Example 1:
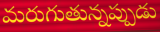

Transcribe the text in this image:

మరుగుతున్నప్పుడు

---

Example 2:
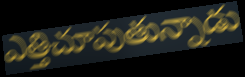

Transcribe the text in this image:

ఎత్తిచూపుతున్నాడు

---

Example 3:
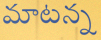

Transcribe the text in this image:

మాటన్న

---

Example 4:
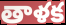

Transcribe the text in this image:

తాళక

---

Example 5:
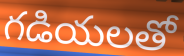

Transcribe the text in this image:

గడియలతో